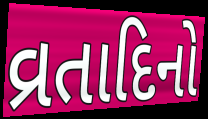
વ્રતાદિનો